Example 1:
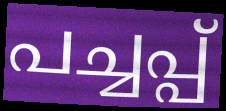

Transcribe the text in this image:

പച്ചപ്പ്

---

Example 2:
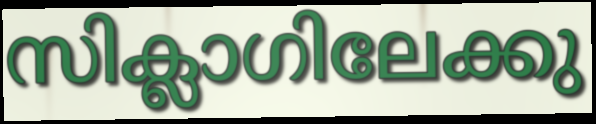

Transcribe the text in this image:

സിക്ലാഗിലേക്കു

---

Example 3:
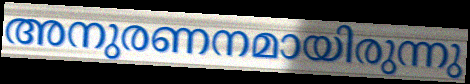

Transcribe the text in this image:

അനുരണനമായിരുന്നു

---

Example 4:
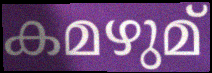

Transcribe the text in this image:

കമഴുമ്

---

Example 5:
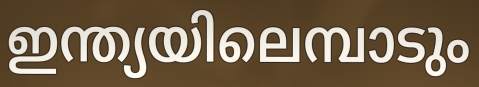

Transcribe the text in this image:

ഇന്ത്യയിലെമ്പാടും